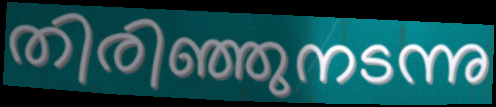
തിരിഞ്ഞുനടന്നു